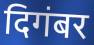
दिगंबर